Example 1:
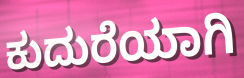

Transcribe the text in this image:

ಕುದುರೆಯಾಗಿ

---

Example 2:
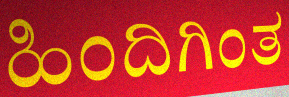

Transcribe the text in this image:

ಹಿಂದಿಗಿಂತ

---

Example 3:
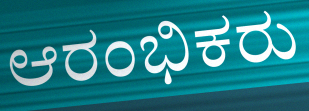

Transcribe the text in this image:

ಆರಂಭಿಕರು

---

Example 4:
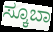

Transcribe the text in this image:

ಸ್ಕೂಬಾ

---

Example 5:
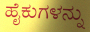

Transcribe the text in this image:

ಹೈಕುಗಳನ್ನು